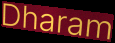
Dharam